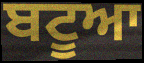
ਬਟੂਆ